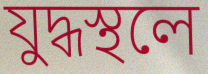
যুদ্ধস্থলে